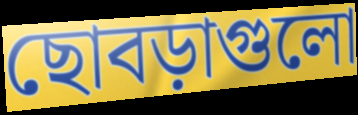
ছোবড়াগুলো